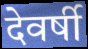
देवर्षी